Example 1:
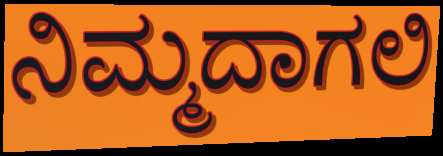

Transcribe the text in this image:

ನಿಮ್ಮದಾಗಲಿ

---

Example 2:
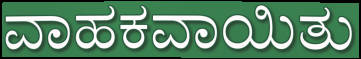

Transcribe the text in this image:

ವಾಹಕವಾಯಿತು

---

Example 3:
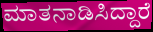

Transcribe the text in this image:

ಮಾತನಾಡಿಸಿದ್ದಾರೆ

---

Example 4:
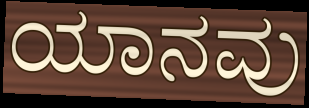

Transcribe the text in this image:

ಯಾನವು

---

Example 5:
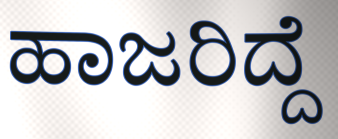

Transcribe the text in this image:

ಹಾಜರಿದ್ದೆ